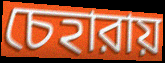
চেহারায়